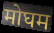
मोघम